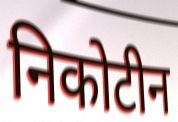
निकोटीन